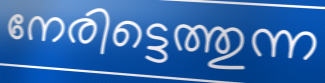
നേരിട്ടെത്തുന്ന